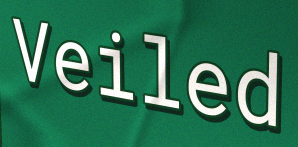
Veiled